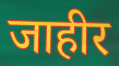
जाहीर